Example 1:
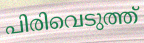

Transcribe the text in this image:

പിരിവെടുത്ത്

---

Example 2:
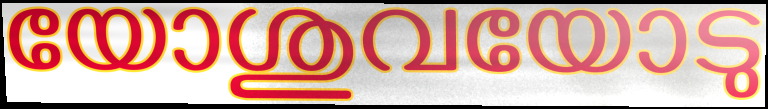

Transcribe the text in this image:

യോശുവയോടു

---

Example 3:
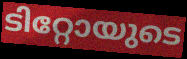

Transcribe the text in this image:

ടിറ്റോയുടെ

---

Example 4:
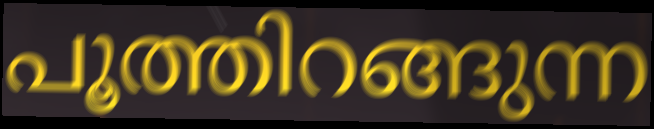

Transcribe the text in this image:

പൂത്തിറങ്ങുന്ന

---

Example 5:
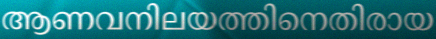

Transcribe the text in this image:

ആണവനിലയത്തിനെതിരായ